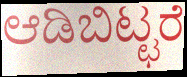
ಆಡಿಬಿಟ್ಟರೆ